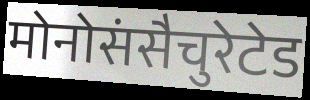
मोनोसंसैचुरेटेड